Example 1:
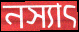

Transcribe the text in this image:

নস্যাৎ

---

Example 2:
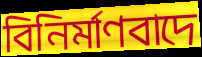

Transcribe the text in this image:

বিনিৰ্মাণবাদে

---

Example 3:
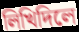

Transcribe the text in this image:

লিখিদিলে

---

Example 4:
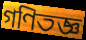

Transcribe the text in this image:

গণিতজ্ঞ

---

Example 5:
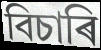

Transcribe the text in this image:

বিচাৰি